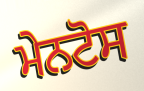
ਮੇਨਟੋਸ